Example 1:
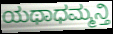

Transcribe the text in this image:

ಯಥಾಧಮ್ಮನ್ತಿ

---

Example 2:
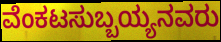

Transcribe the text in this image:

ವೆಂಕಟಸುಬ್ಬಯ್ಯನವರು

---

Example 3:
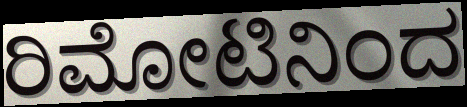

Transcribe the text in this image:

ರಿಮೋಟಿನಿಂದ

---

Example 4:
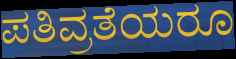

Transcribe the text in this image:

ಪತಿವ್ರತೆಯರೂ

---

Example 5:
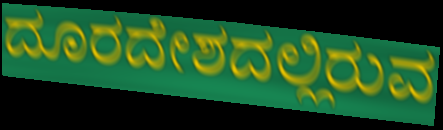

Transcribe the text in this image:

ದೂರದೇಶದಲ್ಲಿರುವ